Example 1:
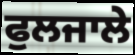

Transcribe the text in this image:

ਫੁਲਜਾਲੇ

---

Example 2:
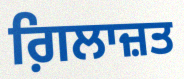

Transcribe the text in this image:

ਗ਼ਿਲਾਜ਼ਤ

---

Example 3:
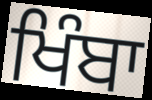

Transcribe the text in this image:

ਖਿੰਬਾ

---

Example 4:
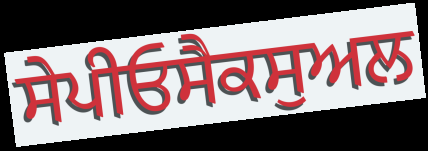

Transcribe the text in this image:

ਸੇਪੀਓਸੈਕਸੁਅਲ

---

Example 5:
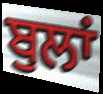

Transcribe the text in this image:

ਬੁਲਾਂ